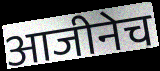
आजीनेच